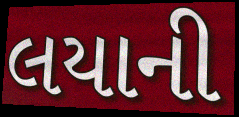
લયાની